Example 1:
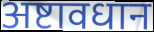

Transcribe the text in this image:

अष्टावधान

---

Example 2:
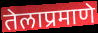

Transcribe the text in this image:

तेलाप्रमाणे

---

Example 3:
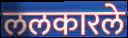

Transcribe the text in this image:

ललकारले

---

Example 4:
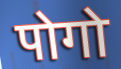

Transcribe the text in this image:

पोगो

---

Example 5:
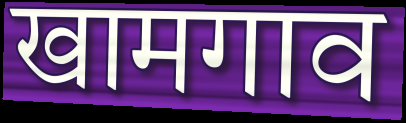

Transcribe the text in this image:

खामगाव